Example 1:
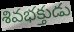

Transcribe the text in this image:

శివభక్తుడు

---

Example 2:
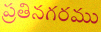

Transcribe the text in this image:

ప్రతినగరము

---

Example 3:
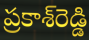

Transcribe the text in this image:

ప్రకాశ్‌రెడ్డి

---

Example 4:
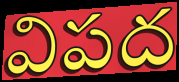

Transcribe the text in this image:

విపద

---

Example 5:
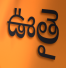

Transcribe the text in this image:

ఊతై